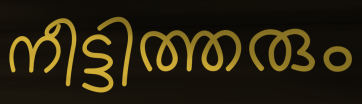
നീട്ടിത്തരും